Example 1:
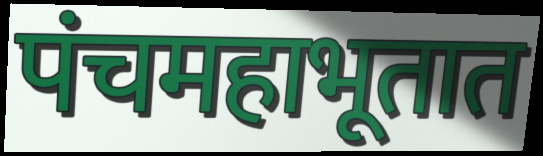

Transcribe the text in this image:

पंचमहाभूतात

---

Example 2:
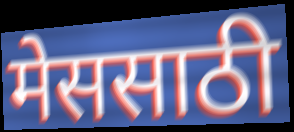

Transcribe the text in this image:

मेससाठी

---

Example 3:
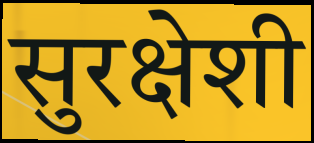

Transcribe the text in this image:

सुरक्षेशी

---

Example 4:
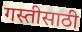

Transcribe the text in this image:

गस्तीसाठी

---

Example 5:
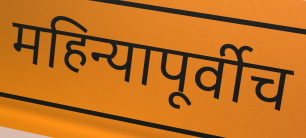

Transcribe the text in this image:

महिन्यापूर्वीच